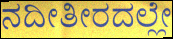
ನದೀತೀರದಲ್ಲೇ